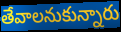
తేవాలనుకున్నారు